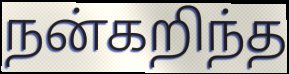
நன்கறிந்த